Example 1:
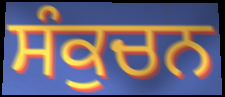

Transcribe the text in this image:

ਸੰਕੁਚਨ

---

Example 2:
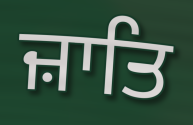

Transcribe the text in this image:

ਜ਼ਾਤਿ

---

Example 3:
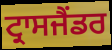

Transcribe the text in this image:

ਟ੍ਰਾਸਜੈਂਡਰ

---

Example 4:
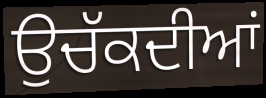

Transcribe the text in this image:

ਉਚੱਕਦੀਆਂ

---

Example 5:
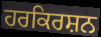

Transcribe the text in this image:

ਹਰਕਿਰਸ਼ਨ